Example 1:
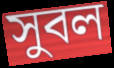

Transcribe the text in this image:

সুবল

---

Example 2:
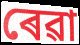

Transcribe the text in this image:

ৰেৱা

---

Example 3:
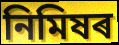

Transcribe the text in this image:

নিমিষৰ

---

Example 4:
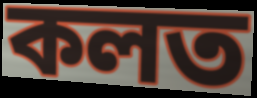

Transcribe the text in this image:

কলত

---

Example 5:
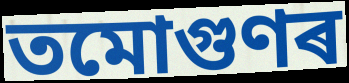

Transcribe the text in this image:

তমোগুণৰ